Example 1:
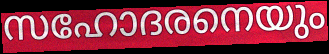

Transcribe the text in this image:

സഹോദരനെയും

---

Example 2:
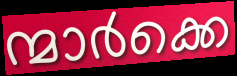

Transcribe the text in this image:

ന്മാർക്കെ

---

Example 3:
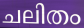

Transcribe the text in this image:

ചലിതം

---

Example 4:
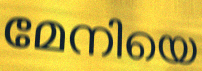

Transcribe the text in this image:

മേനിയെ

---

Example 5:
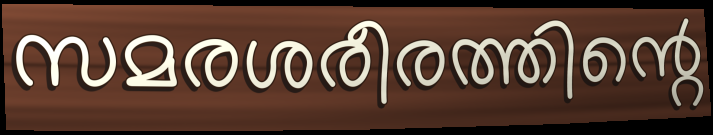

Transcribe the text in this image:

സമരശരീരത്തിന്റെ